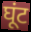
घूंट